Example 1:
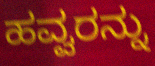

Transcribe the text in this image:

ಹವ್ವರನ್ನು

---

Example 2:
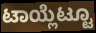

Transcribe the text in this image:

ಟಾಯ್ಲೆಟ್ಟೂ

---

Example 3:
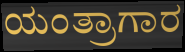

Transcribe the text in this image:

ಯಂತ್ರಾಗಾರ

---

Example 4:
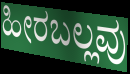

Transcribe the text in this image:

ಹೀರಬಲ್ಲವು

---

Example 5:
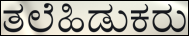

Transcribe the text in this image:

ತಲೆಹಿಡುಕರು